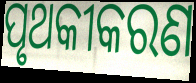
ପୃଥକୀକରଣ